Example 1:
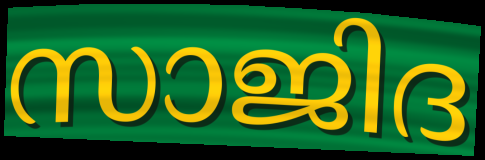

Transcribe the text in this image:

സാജിദ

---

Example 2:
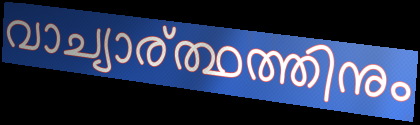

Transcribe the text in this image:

വാച്യാര്ത്ഥത്തിനും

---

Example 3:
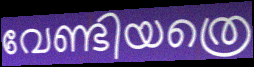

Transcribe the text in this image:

വേണ്ടിയത്രെ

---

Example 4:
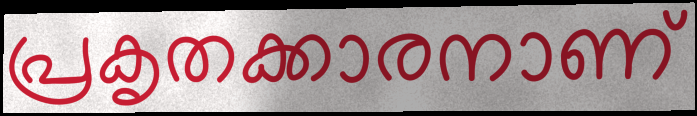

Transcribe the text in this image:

പ്രകൃതക്കാരനാണ്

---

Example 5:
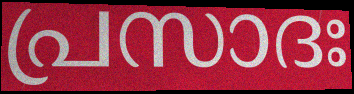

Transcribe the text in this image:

പ്രസാദഃ